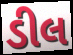
ડીલ